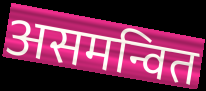
असमन्वित